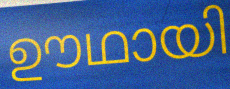
ഊഥായി